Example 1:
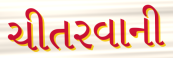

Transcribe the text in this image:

ચીતરવાની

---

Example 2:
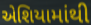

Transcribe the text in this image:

એશિયામાંથી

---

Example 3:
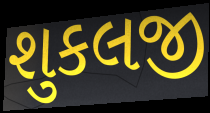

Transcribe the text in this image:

શુકલજી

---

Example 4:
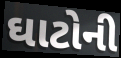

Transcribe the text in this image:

ઘાટોની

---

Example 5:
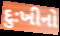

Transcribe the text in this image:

દુઃખીનો